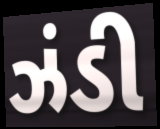
ઝંડી